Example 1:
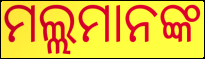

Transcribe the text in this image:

ମଲ୍ଲମାନଙ୍କ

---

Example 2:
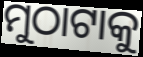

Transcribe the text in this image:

ମୁଠାଟାକୁ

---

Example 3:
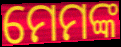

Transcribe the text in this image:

ମେମଙ୍କ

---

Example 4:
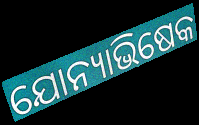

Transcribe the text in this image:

ଯୋନ୍ୟାଭିଷେକ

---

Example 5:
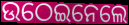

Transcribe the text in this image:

ଉଠେଇନେଲେ